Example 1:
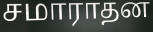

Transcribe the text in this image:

சமாராதன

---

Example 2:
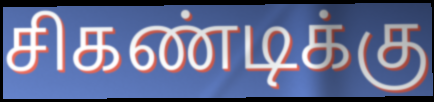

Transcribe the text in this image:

சிகண்டிக்கு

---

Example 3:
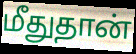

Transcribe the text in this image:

மீதுதான்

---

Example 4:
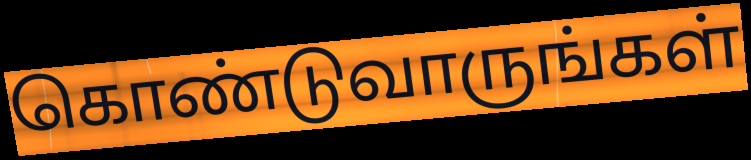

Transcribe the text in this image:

கொண்டுவாருங்கள்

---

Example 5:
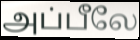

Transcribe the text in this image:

அப்பீலே